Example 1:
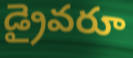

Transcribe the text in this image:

డ్రైవరూ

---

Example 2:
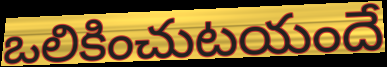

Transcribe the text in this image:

ఒలికించుటయందే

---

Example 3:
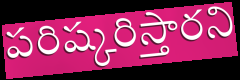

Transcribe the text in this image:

పరిష్కరిస్తారని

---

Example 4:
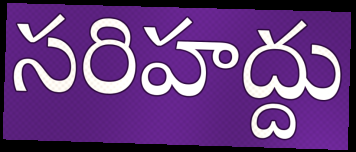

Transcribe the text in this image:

సరిహద్దు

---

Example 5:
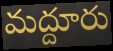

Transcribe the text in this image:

మద్దూరు